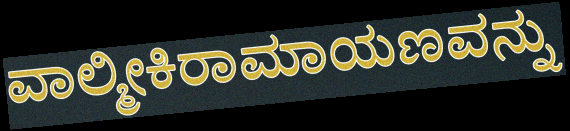
ವಾಲ್ಮೀಕಿರಾಮಾಯಣವನ್ನು